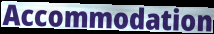
Accommodation